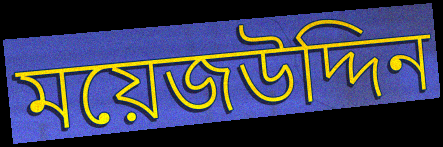
ময়েজউদ্দিন